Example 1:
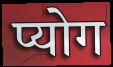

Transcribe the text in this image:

प्योग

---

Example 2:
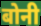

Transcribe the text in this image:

बोनी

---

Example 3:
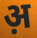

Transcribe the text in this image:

अ़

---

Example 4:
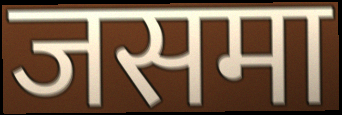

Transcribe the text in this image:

जसमा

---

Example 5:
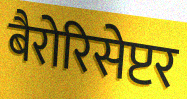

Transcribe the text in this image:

बैरोरिसेप्टर